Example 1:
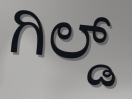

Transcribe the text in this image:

ಗಿಲ್ಡ್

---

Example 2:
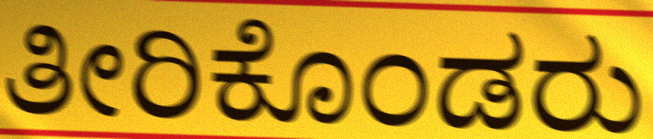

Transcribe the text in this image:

ತೀರಿಕೊಂಡರು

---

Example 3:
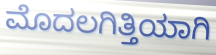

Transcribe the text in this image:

ಮೊದಲಗಿತ್ತಿಯಾಗಿ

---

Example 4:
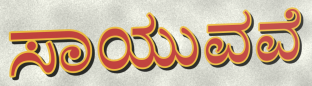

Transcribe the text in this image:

ಸಾಯುವವೆ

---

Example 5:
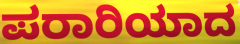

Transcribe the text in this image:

ಪರಾರಿಯಾದ